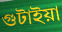
গুটাইয়া